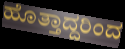
ಹೊತ್ತಾದ್ದರಿಂದ